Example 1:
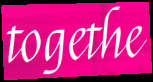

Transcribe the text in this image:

togethe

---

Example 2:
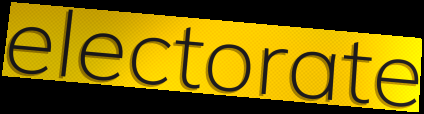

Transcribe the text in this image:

electorate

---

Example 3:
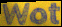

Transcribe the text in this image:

Wot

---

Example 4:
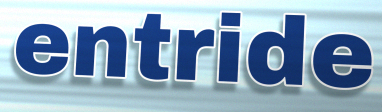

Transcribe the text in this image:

entride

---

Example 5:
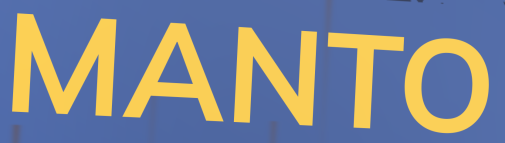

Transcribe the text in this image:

MANTO